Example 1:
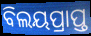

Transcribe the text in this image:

ବିଲୟପ୍ରାପ୍ତ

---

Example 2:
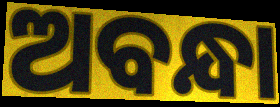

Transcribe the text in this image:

ଅବନ୍ଧା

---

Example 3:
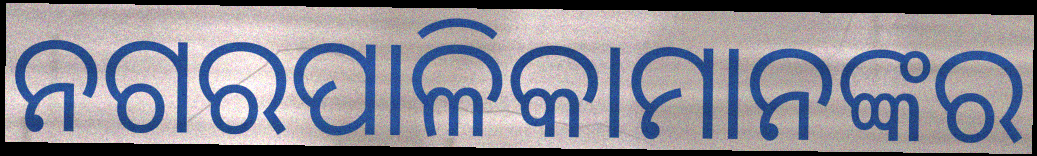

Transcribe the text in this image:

ନଗରପାଳିକାମାନଙ୍କର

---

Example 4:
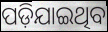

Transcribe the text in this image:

ପଡ଼ିଯାଇଥିବ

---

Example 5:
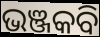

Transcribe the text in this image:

ଭଞ୍ଜକବି